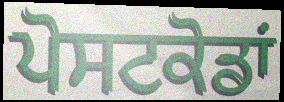
ਪੋਸਟਕੋਡਾਂ